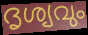
ദൃശ്യവും